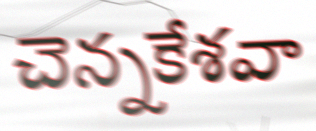
చెన్నకేశవా